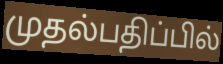
முதல்பதிப்பில்